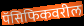
पॅसिफिकवरील